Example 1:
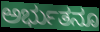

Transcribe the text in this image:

ಅರ್ಭುತನೂ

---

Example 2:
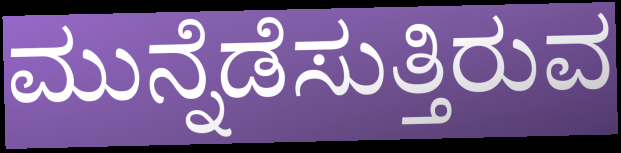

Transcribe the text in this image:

ಮುನ್ನೆಡೆಸುತ್ತಿರುವ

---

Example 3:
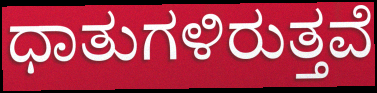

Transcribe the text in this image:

ಧಾತುಗಳಿರುತ್ತವೆ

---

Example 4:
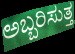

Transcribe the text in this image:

ಅಬ್ಬರಿಸುತ್ತ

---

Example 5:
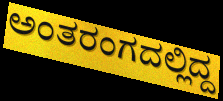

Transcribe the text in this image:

ಅಂತರಂಗದಲ್ಲಿದ್ದ